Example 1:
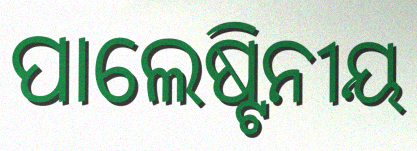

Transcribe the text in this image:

ପାଲେଷ୍ଟିନୀୟ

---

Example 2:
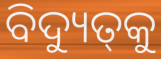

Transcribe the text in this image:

ବିଦ୍ୟୁତ୍‌କୁ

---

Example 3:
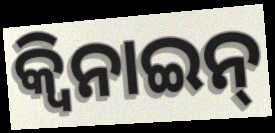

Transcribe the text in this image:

କ୍ୱିନାଇନ୍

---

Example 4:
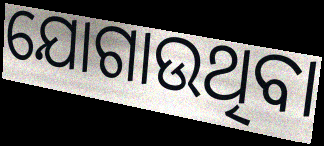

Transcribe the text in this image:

ଯୋଗାଉଥିବା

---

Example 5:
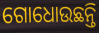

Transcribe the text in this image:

ଗୋଧୋଉଛନ୍ତି